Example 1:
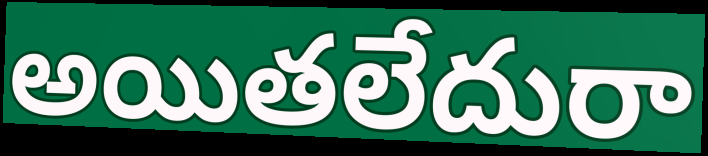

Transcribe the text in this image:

అయితలేదురా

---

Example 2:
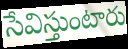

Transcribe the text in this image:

సేవిస్తుంటారు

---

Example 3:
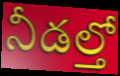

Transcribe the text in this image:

నీడల్తో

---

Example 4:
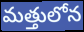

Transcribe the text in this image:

మత్తులోన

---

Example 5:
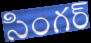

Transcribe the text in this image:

సింగర్